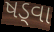
ષડ્વા